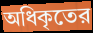
অধিকৃতের